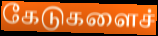
கேடுகளைச்